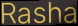
Rasha